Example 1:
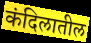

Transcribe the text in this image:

कंदिलातील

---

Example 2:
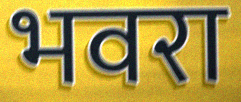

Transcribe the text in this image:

भवरा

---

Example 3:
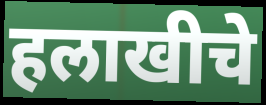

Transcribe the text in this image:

हलाखीचे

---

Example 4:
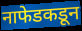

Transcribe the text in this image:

नाफेडकडून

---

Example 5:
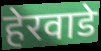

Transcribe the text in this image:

हेरवाडे